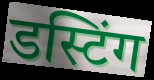
डस्टिंग